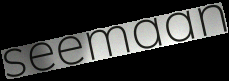
seemaan